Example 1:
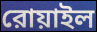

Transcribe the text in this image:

রোয়াইল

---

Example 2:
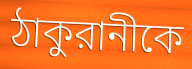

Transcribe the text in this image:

ঠাকুরানীকে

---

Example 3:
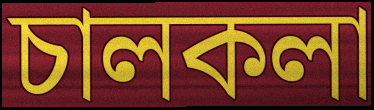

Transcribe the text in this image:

চালকলা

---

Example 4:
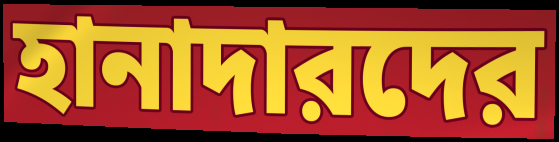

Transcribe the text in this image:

হানাদারদের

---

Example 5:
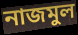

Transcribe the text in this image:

নাজমুল